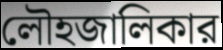
লৌহজালিকার